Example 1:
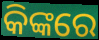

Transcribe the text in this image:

କିଙ୍କରେ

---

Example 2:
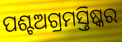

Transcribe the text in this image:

ପଶ୍ଚଅଗ୍ରମସ୍ତିଷ୍କର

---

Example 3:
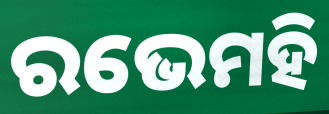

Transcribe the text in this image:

ରଭେମହି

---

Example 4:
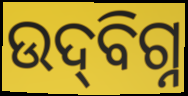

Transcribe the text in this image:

ଉଦ୍‌ବିଗ୍ନ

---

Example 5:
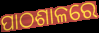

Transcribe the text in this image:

ପାଠଶାଳରେ